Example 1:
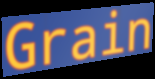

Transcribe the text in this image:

Grain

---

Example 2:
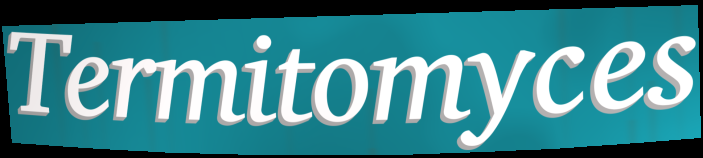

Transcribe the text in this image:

Termitomyces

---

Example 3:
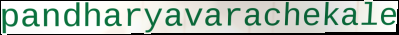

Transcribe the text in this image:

pandharyavarachekale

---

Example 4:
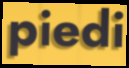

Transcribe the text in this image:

piedi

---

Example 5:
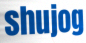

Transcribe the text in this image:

shujog